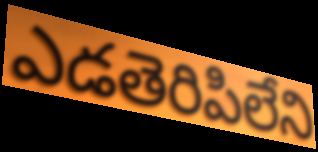
ఎడతెరిపిలేని